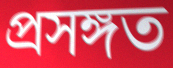
প্ৰসঙ্গত